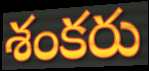
శంకరు